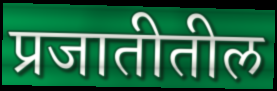
प्रजातीतील